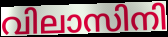
വിലാസിനി